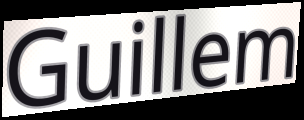
Guillem